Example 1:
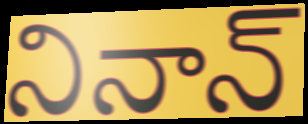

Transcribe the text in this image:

నినాన్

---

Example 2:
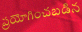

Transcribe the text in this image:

ప్రయోగించబడిన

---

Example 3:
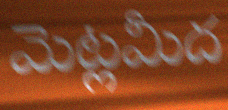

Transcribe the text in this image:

మెట్లమీద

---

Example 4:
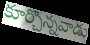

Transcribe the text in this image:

కూర్చొన్నవాడు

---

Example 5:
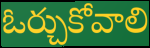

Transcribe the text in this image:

ఓర్చుకోవాలి